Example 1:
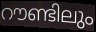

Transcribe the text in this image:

റൗണ്ടിലും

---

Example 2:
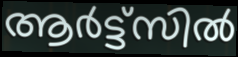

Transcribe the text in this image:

ആർട്ട്സിൽ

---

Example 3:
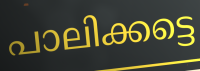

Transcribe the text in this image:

പാലിക്കട്ടെ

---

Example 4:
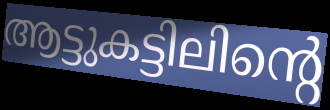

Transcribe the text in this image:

ആട്ടുകട്ടിലിന്റെ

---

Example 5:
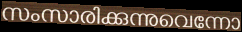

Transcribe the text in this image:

സംസാരിക്കുന്നുവെന്നോ